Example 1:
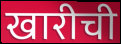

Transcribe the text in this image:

खारीची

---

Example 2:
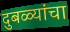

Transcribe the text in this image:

दुबळ्यांचा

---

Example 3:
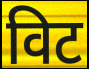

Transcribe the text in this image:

विट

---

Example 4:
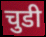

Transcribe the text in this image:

चुडी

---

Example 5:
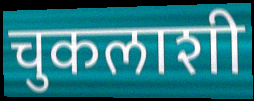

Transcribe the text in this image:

चुकलाशी